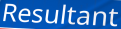
Resultant